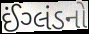
ઈંગ્લંડનો